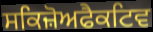
ਸਕਿਜ਼ੋਅਫੈਕਟਿਵ